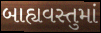
બાહ્યવસ્તુમાં